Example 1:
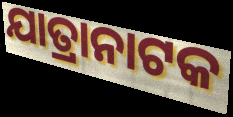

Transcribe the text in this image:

ଯାତ୍ରାନାଟକ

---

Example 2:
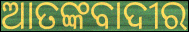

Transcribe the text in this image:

ଆତଙ୍କବାଦୀର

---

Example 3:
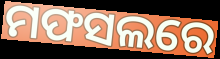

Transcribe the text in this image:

ମଫସଲରେ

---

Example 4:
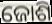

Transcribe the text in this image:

ଜୋଶି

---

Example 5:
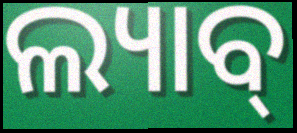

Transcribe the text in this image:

ଲ୍ୟାବ୍